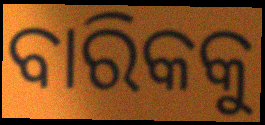
ବାରିକକୁ